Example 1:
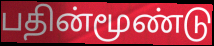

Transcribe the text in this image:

பதின்மூண்டு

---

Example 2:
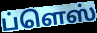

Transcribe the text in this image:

ப்ளெஸ்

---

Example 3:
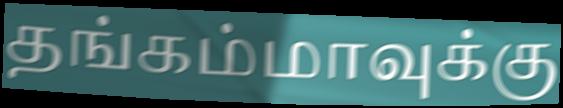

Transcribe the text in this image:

தங்கம்மாவுக்கு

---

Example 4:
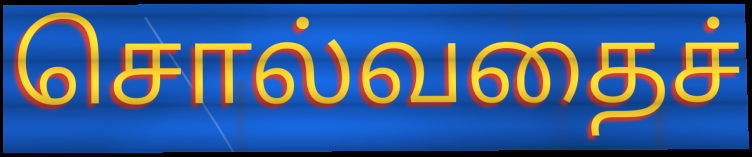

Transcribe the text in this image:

சொல்வதைச்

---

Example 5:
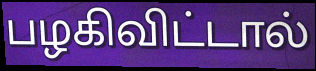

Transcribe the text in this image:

பழகிவிட்டால்